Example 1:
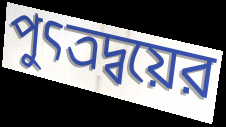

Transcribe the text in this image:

পুৎত্রদ্বয়ের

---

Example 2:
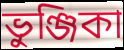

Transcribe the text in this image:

ভুঞ্জিকা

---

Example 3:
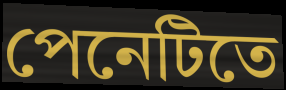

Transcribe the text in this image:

পেনেটিতে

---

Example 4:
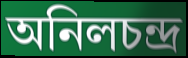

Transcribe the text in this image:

অনিলচন্দ্র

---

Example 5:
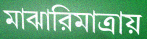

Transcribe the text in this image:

মাঝারিমাত্রায়